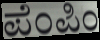
ಪೆಂಪಿಂ